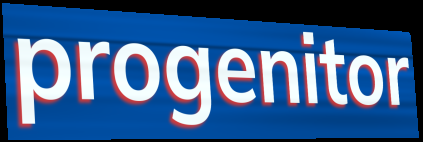
progenitor